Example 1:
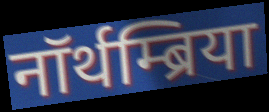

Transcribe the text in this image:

नॉर्थम्ब्रिया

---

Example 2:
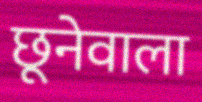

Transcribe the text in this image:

छूनेवाला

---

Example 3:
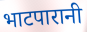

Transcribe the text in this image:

भाटपारानी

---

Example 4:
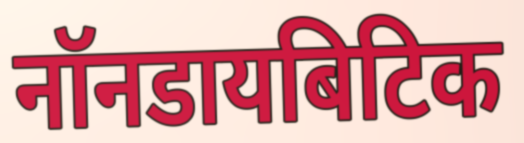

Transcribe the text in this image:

नॉनडायबिटिक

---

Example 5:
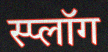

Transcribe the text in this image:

स्प्लॉग